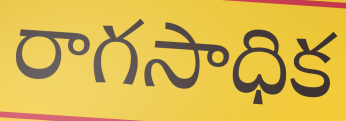
రాగసాధిక